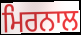
ਮਿਰਨਾਲ